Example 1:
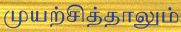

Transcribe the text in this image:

முயற்சித்தாலும்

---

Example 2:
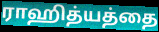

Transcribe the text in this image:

ராஹித்யத்தை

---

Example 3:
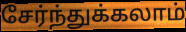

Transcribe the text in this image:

சேர்ந்துக்கலாம்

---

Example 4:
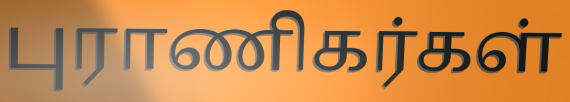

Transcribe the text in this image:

புராணிகர்கள்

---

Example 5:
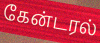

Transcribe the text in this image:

கேன்டரல்